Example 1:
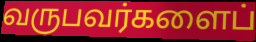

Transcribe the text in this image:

வருபவர்களைப்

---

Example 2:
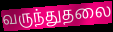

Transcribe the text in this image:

வருந்துதலை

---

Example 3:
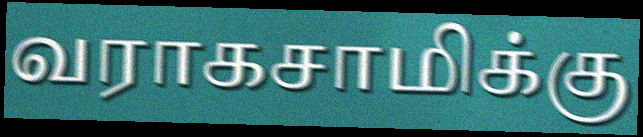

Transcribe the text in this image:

வராகசாமிக்கு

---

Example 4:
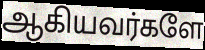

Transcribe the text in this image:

ஆகியவர்களே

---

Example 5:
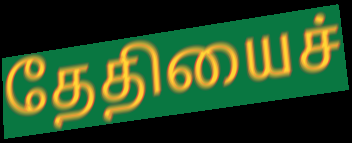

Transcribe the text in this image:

தேதியைச்